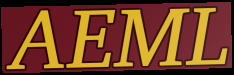
AEML